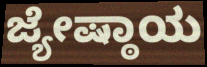
ಜ್ಯೇಷ್ಠಾಯ